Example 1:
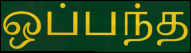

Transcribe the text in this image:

ஒப்பந்த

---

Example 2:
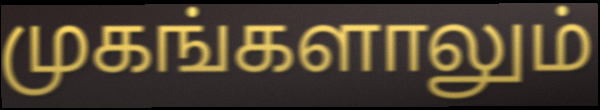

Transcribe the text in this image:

முகங்களாலும்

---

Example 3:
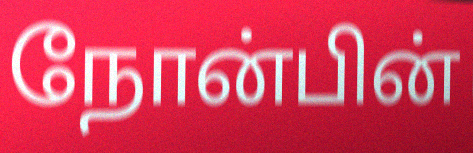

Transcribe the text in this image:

நோன்பின்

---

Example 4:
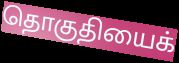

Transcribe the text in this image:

தொகுதியைக்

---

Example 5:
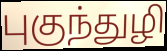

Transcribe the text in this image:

புகுந்துழி